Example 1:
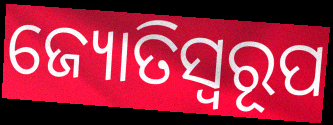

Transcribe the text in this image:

ଜ୍ୟୋତିସ୍ୱରୂପ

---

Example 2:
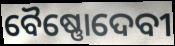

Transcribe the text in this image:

ବୈଷ୍ଣୋଦେବୀ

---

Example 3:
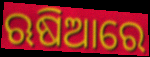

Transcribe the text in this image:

ଋଷିଆରେ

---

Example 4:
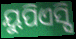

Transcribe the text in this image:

ୟୁପିଏସ୍ସି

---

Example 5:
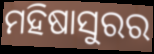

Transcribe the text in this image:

ମହିଷାସୁରର